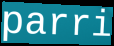
parri